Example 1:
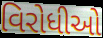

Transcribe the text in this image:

વિરોધીઓ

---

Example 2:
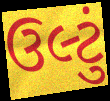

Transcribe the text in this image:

ઉલ્ટું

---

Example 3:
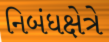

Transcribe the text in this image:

નિબંધક્ષેત્રે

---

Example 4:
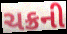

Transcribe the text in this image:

ચક્રની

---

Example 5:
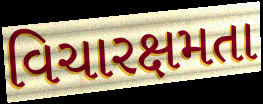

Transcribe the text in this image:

વિચારક્ષમતા